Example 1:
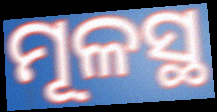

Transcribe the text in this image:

ମୂଳସ୍ଥ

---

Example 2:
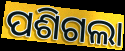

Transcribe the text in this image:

ପଶିଗଲା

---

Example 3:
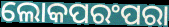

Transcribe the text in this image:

ଲୋକପରଂପରା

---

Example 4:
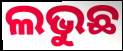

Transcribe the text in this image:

ଲଭୁଛ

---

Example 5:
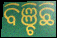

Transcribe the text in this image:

ବିଞ୍ଚିଛି